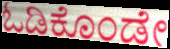
ಓಡಿಕೊಂಡೇ